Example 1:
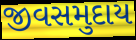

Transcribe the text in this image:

જીવસમુદાય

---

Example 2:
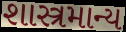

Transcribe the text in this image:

શાસ્ત્રમાન્ય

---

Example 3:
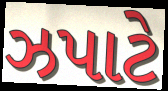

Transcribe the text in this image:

ઝપાટે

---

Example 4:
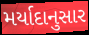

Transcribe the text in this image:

મર્યાદાનુસાર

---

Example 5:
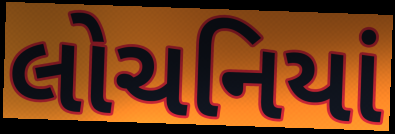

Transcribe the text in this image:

લોચનિયાં